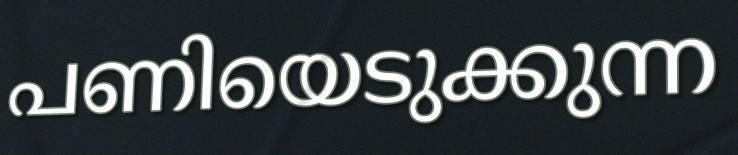
പണിയെടുക്കുന്ന